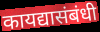
कायद्यासंबंधी